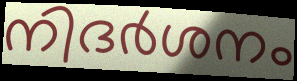
നിദർശനം